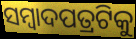
ସମ୍ବାଦପତ୍ରଟିକୁ